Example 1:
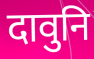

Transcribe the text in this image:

दावुनि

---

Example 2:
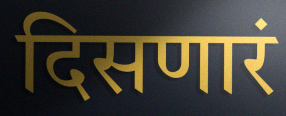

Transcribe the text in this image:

दिसणारं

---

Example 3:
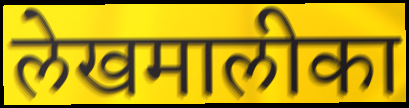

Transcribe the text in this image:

लेखमालीका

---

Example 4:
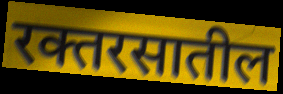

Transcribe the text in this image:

रक्तरसातील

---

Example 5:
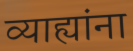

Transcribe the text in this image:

व्याह्यांना